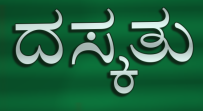
ದಸ್ಕತು